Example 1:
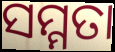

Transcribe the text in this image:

ସମ୍ମତା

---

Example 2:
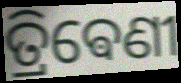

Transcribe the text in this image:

ତ୍ରିଵେଣୀ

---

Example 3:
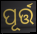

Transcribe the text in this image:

ପୂର୍ତ୍ତ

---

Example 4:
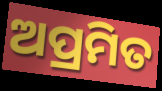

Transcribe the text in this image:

ଅପ୍ରମିତ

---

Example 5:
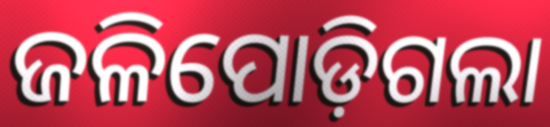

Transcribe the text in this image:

ଜଳିପୋଡ଼ିଗଲା